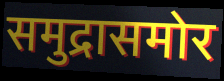
समुद्रासमोर